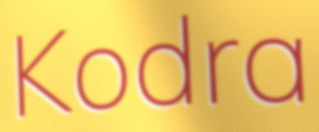
Kodra